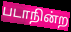
படாநின்ற